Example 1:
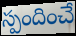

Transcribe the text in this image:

స్పందించే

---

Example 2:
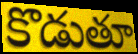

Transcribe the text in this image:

కొడుతూ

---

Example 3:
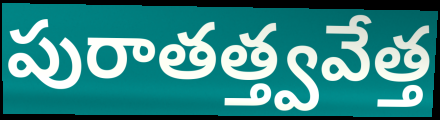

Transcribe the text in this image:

పురాతత్త్వవేత్త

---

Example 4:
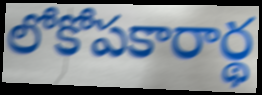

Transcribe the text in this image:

లోకోపకారార్థ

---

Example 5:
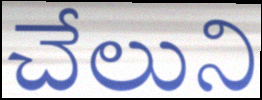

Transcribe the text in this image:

చేలుని